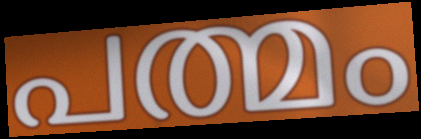
പത്മം